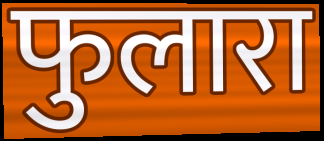
फुलारा